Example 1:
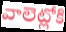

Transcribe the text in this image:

వాలెట్లోకి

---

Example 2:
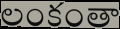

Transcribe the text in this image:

లంకంతా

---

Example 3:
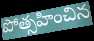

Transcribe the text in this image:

పోత్సహించిన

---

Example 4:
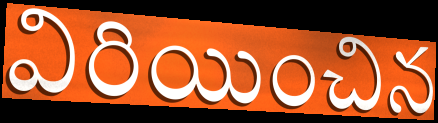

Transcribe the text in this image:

విరియించిన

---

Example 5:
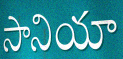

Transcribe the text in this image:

సానియా